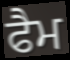
ਫੈਮ